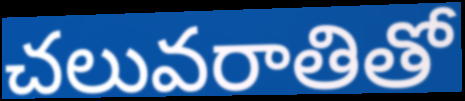
చలువరాతితో